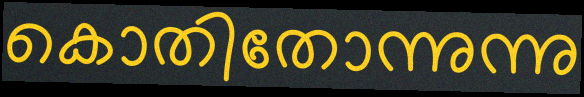
കൊതിതോന്നുന്നു